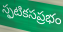
స్ఫటికసప్రభం